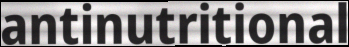
antinutritional